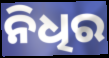
ନିଧିର